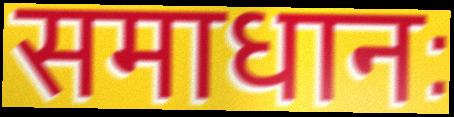
समाधानः